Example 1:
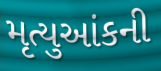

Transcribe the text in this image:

મૃત્યુઆંકની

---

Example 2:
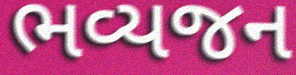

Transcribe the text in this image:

ભવ્યજન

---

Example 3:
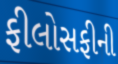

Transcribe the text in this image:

ફીલોસફીની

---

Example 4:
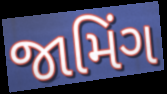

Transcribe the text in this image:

જામિંગ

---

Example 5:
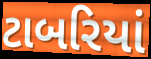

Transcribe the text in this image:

ટાબરિયાં